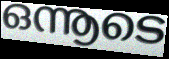
ഒന്നൂടെ